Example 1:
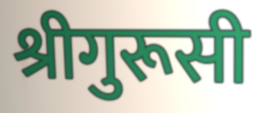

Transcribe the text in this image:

श्रीगुरूसी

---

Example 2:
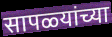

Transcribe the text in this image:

सापळ्यांच्या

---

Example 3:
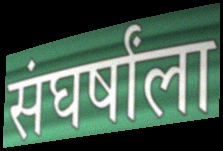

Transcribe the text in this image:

संघर्षांला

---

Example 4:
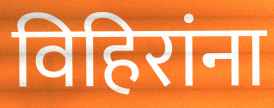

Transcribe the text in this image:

विहिरांना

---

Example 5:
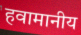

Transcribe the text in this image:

हवामानीय